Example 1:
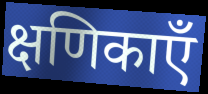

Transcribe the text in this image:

क्षणिकाएँ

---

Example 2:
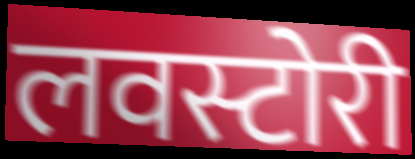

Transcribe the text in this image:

लवस्‍टोरी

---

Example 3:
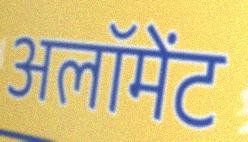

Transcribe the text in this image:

अलॉमेंट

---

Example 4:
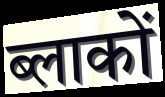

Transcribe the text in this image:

ब्लाकों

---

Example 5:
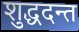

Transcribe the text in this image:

शुद्धदन्त